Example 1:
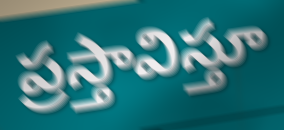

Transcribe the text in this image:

ప్రస్తావిస్తూ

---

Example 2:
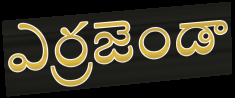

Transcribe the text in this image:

ఎర్రజెండా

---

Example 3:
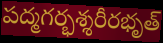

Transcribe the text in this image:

పద్మగర్భశ్శరీరభృత్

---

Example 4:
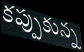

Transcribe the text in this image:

కప్పుకున్న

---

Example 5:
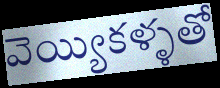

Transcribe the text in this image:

వెయ్యికళ్ళతో